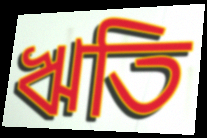
ঋতি